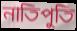
নাতিপুতি